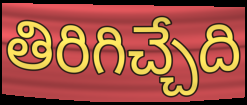
తిరిగిచ్చేది